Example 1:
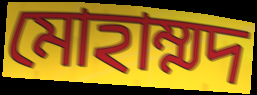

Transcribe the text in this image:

মোহাম্মদ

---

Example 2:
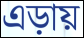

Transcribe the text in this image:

এড়ায়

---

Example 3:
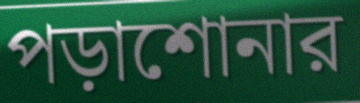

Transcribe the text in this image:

পড়াশোনার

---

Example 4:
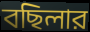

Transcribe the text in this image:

বছিলার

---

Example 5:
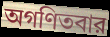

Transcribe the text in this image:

অগণিতবার